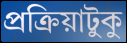
প্রক্রিয়াটুকু